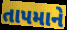
તાપમાને